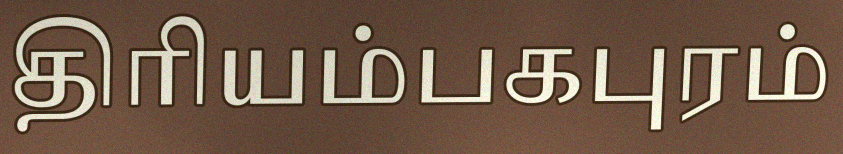
திரியம்பகபுரம்